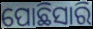
ପୋଛିସାରି